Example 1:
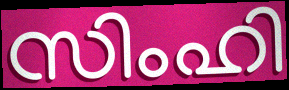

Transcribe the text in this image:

സിംഹി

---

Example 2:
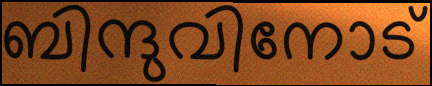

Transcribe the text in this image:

ബിന്ദുവിനോട്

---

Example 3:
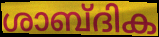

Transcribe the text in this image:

ശാബ്ദിക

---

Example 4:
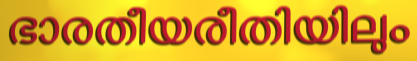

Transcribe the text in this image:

ഭാരതീയരീതിയിലും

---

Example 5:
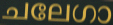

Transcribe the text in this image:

ചലേഗാ